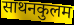
साथनकुलम